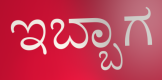
ಇಬ್ಬಾಗ